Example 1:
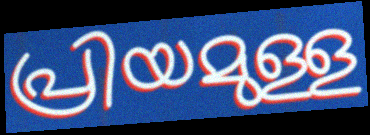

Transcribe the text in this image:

പ്രിയമുള്ള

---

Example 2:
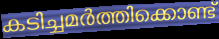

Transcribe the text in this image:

കടിച്ചമർത്തിക്കൊണ്ട്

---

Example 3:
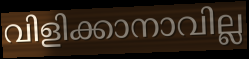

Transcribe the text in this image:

വിളിക്കാനാവില്ല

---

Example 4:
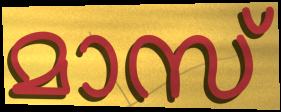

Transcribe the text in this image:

മാസ്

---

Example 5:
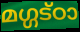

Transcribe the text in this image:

മഗ്ഗട്ഠാ